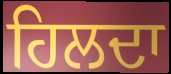
ਹਿਲਦਾ